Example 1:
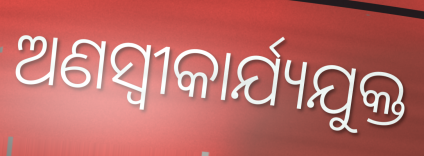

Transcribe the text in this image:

ଅଣସ୍ବୀକାର୍ଯ୍ୟଯୁକ୍ତ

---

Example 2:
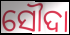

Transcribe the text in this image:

ସୌଦା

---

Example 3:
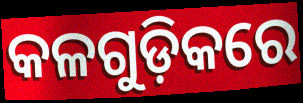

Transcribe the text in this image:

କଳଗୁଡ଼ିକରେ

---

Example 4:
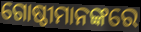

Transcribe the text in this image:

ଗୋଷ୍ଠୀମାନଙ୍କରେ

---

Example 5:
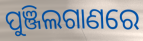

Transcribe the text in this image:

ପୁଞ୍ଜିଲଗାଣରେ